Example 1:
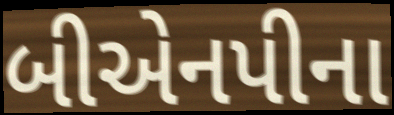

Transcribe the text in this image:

બીએનપીના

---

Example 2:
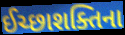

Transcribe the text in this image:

ઈચ્છાશક્તિના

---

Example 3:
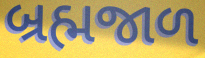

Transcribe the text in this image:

બ્રહ્મજાળ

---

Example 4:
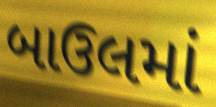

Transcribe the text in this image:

બાઉલમાં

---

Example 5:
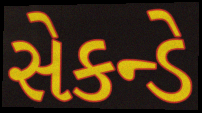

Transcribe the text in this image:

સેકન્ડે